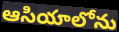
ఆసియాలోను